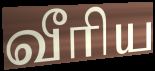
வீரிய